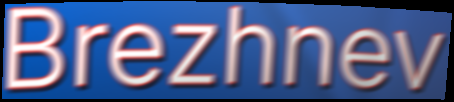
Brezhnev